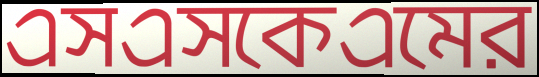
এসএসকেএমের